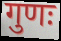
गुणः